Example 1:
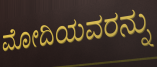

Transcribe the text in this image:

ಮೋದಿಯವರನ್ನು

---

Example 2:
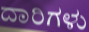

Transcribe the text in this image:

ದಾರಿಗಳು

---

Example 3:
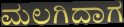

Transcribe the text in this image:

ಮಲಗಿದಾಗ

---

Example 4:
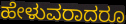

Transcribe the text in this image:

ಹೇಳುವರಾದರೂ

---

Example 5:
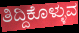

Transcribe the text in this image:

ತಿದ್ದಿಕೊಳ್ಳುವ